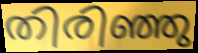
തിരിഞ്ഞു